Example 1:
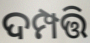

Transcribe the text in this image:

ଦମ୍ପତ୍ତି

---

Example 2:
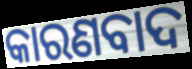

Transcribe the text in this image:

କାରଣବାଦ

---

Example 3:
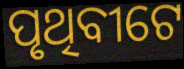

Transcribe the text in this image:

ପୃଥିବୀଟେ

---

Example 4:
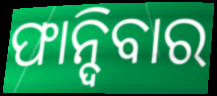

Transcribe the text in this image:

ଫାନ୍ଦିବାର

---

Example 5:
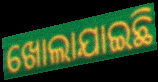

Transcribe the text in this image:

ଖୋଲାଯାଇଛି